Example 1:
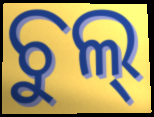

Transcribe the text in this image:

ଚୁଲ୍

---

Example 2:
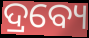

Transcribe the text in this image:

ଦ୍ରବ୍ୟେ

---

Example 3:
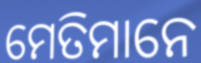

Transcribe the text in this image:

ମେତିମାନେ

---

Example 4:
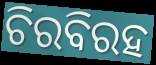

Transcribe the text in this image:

ଚିରବିରହ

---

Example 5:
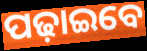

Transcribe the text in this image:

ପଢ଼ାଇବେ